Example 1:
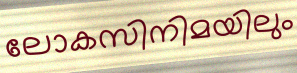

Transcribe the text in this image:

ലോകസിനിമയിലും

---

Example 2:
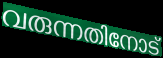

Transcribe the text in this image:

വരുന്നതിനോട്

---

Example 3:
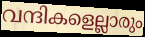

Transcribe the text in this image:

വന്ദികളെല്ലാരും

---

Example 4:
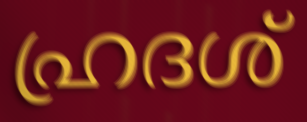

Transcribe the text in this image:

ഹ്രദശ്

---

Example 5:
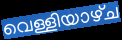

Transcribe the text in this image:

വെള്ളിയാഴ്‌ച